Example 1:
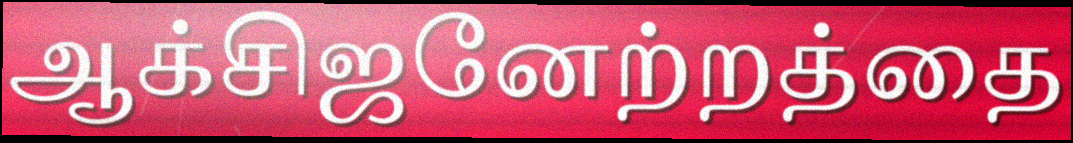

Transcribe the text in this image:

ஆக்சிஜனேற்றத்தை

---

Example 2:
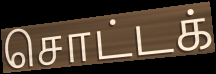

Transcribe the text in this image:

சொட்டக்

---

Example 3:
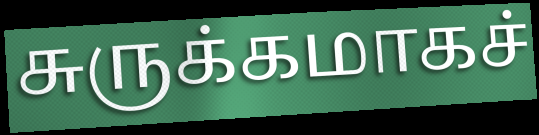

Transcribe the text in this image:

சுருக்கமாகச்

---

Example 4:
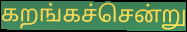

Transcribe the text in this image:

கறங்கச்சென்று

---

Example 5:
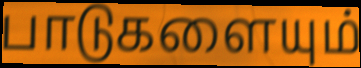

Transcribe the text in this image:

பாடுகளையும்